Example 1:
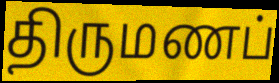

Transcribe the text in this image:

திருமணப்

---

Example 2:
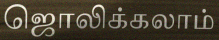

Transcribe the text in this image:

ஜொலிக்கலாம்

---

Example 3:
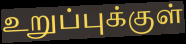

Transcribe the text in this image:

உறுப்புக்குள்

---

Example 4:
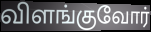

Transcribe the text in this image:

விளங்குவோர்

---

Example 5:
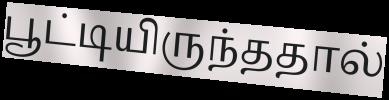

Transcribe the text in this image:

பூட்டியிருந்ததால்